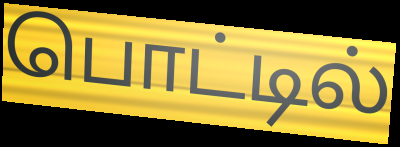
பொட்டில்